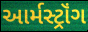
આર્મસ્ટ્રૉંગ